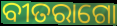
ବୀତରାଗୋ